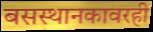
बसस्थानकावरही